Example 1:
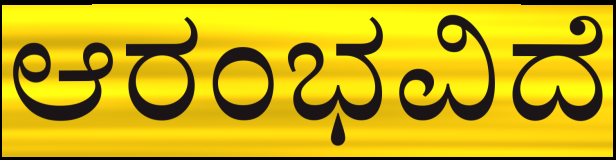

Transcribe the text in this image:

ಆರಂಭವಿದೆ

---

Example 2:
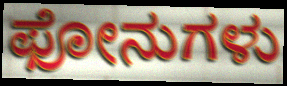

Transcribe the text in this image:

ಫೋನುಗಳು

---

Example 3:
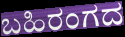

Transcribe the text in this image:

ಬಹಿರಂಗದ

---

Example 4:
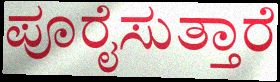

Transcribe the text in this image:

ಪೂರೈಸುತ್ತಾರೆ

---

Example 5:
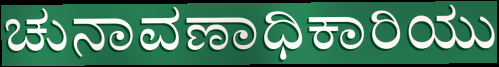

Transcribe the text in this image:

ಚುನಾವಣಾಧಿಕಾರಿಯು